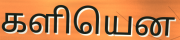
களியென